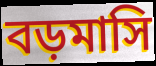
বড়মাসি